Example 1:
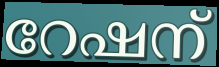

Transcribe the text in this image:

റേഷന്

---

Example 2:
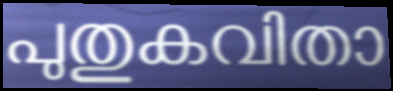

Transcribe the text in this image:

പുതുകവിതാ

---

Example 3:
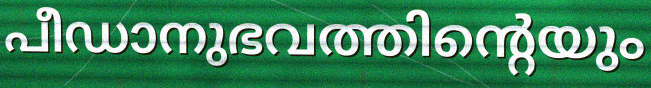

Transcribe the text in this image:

പീഡാനുഭവത്തിന്റെയും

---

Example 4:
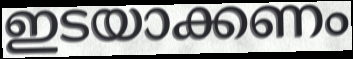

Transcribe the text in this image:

ഇടയാക്കണം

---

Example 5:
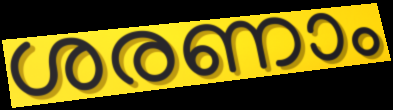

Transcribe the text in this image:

ശരണാം